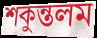
শকুন্তলম